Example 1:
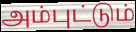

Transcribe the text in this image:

அம்புட்டும்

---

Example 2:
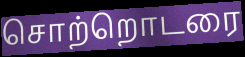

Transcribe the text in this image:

சொற்றொடரை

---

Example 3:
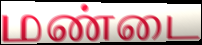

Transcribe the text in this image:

மண்டை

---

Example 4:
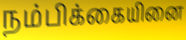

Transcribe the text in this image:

நம்பிக்கையினை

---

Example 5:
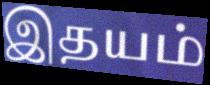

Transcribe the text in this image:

இதயம்